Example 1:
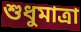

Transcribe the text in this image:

শুধুমাত্রা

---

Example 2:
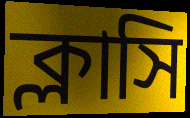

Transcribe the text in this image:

ক্লাসি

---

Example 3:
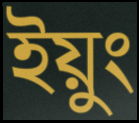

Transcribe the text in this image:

ইয়ুং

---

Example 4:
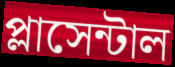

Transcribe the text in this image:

প্লাসেন্টাল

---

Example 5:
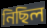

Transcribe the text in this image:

নিছিল